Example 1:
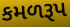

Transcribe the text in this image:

કમળરૂપ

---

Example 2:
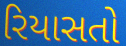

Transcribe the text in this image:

રિયાસતો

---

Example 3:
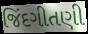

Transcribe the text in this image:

જિંદગીતણી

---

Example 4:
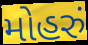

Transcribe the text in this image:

મોહરું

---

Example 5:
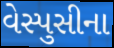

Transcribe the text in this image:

વેસ્પુસીના